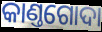
କାଣ୍ତଗୋଦା